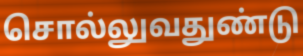
சொல்லுவதுண்டு